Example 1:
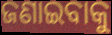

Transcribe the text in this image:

ଜଣାଇବାକୁ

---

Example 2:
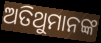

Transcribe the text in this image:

ଅତିଥୁମାନଙ୍କ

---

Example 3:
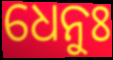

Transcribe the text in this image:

ଧେନୁଃ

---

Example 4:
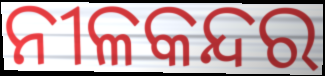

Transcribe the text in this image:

ନୀଳକନ୍ଦର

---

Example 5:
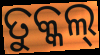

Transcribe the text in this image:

ତୁକ୍କଲ୍